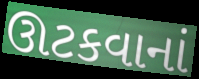
ઊટકવાનાં